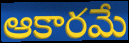
ఆకారమే